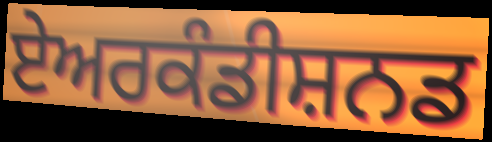
ਏਅਰਕੰਡੀਸ਼ਨਡ